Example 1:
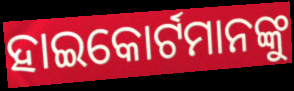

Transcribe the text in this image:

ହାଇକୋର୍ଟମାନଙ୍କୁ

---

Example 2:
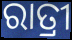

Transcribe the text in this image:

ରାତ୍ରୀ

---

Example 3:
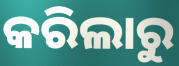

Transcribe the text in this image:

କରିଲାରୁ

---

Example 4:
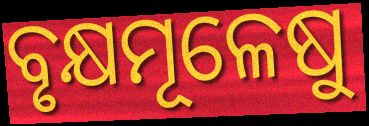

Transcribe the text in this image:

ବୃକ୍ଷମୂଳେଷୁ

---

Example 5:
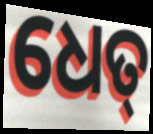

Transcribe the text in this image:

ଧେତ୍